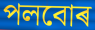
পলবোৰ